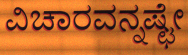
ವಿಚಾರವನ್ನಷ್ಟೇ